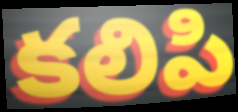
కలిపి